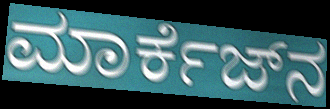
ಮಾರ್ಕೆಜ್‌ನ